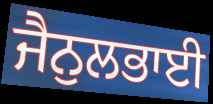
ਜੈਨੁਲਭਾਈ